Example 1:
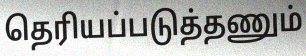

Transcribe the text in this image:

தெரியப்படுத்தணும்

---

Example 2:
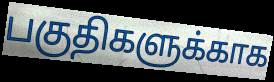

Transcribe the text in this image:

பகுதிகளுக்காக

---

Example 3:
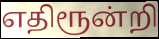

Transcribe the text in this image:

எதிரூன்றி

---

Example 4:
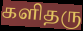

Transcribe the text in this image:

களிதரு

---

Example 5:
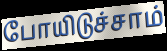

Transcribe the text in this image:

போயிடுச்சாம்